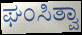
ಘಂಸಿತ್ವಾ